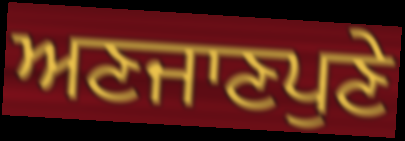
ਅਣਜਾਣਪੁਣੇ